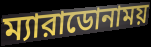
ম্যারাডোনাময়